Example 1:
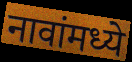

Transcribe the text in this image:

नावांमध्ये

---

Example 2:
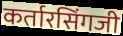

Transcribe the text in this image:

कर्तारसिंगजी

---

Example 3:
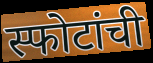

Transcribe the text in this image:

स्फोटांची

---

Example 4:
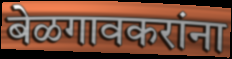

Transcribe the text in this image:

बेळगावकरांना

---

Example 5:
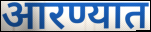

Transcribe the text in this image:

आरण्यात